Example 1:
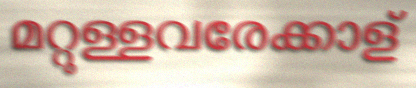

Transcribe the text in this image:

മറ്റുള്ളവരേക്കാള്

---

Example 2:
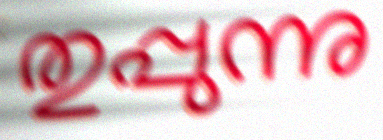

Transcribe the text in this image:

തുപ്പുന്നു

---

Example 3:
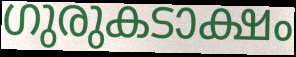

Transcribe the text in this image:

ഗുരുകടാക്ഷം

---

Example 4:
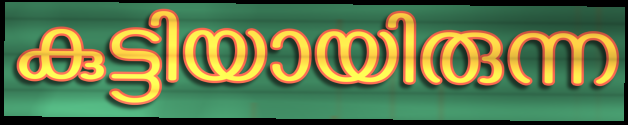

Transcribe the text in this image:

കുട്ടിയായിരുന്ന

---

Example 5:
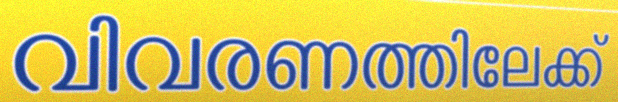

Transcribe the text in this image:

വിവരണത്തിലേക്ക്